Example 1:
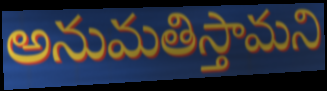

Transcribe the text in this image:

అనుమతిస్తామని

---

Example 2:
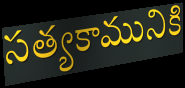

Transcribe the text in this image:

సత్యకామునికి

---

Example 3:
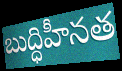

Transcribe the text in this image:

బుద్ధిహీనత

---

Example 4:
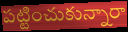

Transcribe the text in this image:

పట్టించుకున్నారా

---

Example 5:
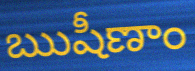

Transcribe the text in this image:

ఋషీణాం